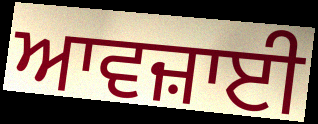
ਆਵਜ਼ਾਈ